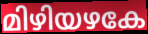
മിഴിയഴകേ